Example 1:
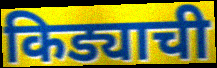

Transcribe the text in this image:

किड्याची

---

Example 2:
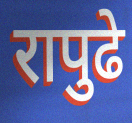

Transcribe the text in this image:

रापुढे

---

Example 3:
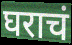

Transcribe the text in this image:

घराचं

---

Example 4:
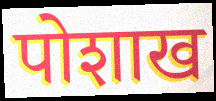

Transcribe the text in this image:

पोशाख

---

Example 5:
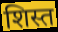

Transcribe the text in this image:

शिस्त